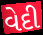
વેદી